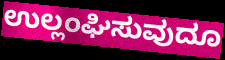
ಉಲ್ಲಂಘಿಸುವುದೂ